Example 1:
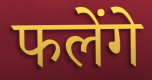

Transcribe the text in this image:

फलेंगे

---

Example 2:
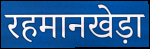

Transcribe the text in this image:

रहमानखेड़ा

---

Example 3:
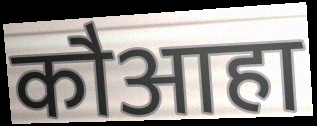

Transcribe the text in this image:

कौआहा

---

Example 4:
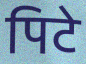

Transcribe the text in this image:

पिटे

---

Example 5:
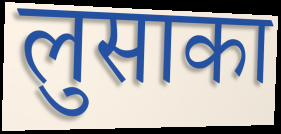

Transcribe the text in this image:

लुसाका